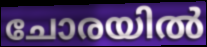
ചോരയിൽ